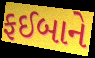
ફઈબાને